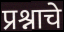
प्रश्नाचे